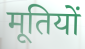
मूतियों